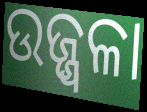
ଉଜ୍ଜ୍ୱଳା